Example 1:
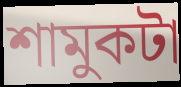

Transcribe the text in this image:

শামুকটা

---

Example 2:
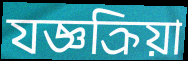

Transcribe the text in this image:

যজ্ঞক্রিয়া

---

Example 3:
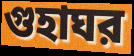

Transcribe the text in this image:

গুহাঘর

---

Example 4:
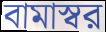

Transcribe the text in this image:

বামাস্বর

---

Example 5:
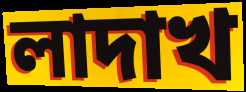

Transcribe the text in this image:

লাদাখ